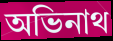
অভিনাথ